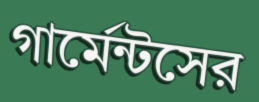
গার্মেন্টসের